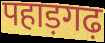
पहाड़गढ़